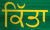
ਕਿੱਤਾ